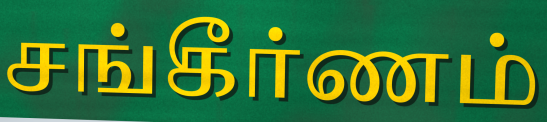
சங்கீர்ணம்